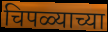
चिपळ्याच्या